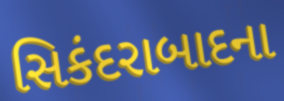
સિકંદરાબાદના